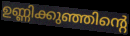
ഉണ്ണിക്കുഞ്ഞിന്റെ